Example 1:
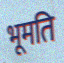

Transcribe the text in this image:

भूमति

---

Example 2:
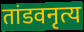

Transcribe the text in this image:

तांडवनृत्य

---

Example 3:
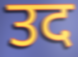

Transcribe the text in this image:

उद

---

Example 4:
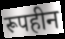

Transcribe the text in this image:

रूपहीन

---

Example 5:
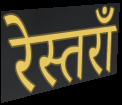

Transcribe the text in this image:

रेस्तराँ